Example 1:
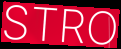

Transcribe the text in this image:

STRO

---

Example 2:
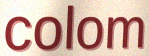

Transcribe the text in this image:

colom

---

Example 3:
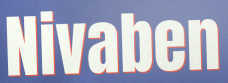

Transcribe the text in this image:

Nivaben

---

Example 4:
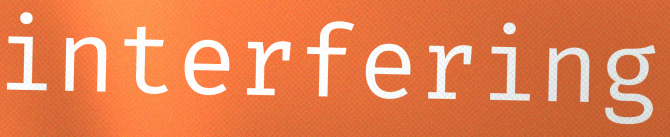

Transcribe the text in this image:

interfering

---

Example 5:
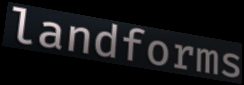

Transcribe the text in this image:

landforms